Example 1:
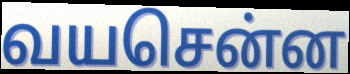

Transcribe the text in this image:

வயசென்ன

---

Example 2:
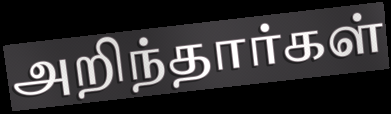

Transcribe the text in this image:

அறிந்தார்கள்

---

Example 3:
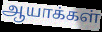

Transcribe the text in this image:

ஆயாக்கள்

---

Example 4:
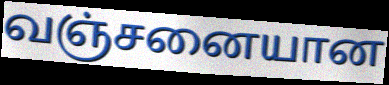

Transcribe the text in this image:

வஞ்சனையான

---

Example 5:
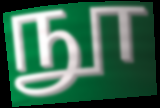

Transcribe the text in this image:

நூ